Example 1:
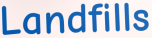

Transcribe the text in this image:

Landfills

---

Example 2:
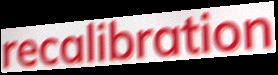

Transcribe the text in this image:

recalibration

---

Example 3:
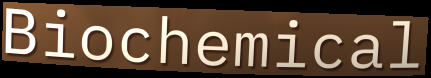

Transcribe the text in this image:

Biochemical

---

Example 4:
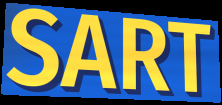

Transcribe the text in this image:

SART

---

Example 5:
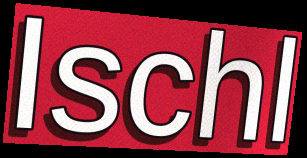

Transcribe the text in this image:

Ischl